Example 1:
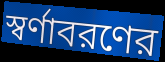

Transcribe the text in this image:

স্বর্ণাবরণের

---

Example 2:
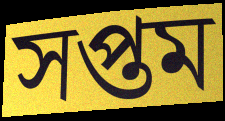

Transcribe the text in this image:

সপ্তম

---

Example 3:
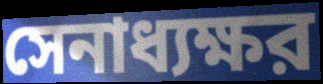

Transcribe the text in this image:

সেনাধ্যক্ষর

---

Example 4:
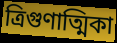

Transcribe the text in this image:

ত্রিগুণাত্মিকা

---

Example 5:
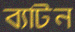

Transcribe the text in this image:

ব্যাটন